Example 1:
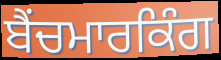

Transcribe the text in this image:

ਬੈਂਚਮਾਰਕਿੰਗ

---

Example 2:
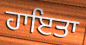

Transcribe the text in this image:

ਹਾਇਤਾ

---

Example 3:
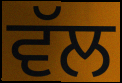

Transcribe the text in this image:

ਵੱਲ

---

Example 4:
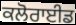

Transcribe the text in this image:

ਕਲੋਰਾਈਡ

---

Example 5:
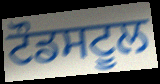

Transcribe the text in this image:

ਟੌਡਸਟੂਲ